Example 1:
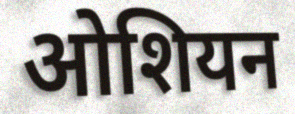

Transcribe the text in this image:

ओशियन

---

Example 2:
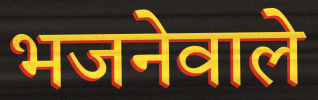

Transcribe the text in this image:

भजनेवाले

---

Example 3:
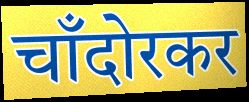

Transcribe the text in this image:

चाँदोरकर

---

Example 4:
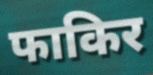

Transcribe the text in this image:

फाकिर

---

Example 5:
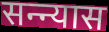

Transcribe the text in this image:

सन्न्यास